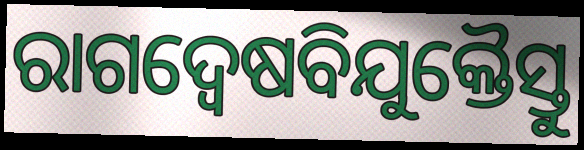
ରାଗଦ୍ୱେଷବିଯୁକ୍ତୈସ୍ତୁ